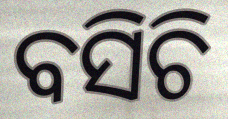
ବସିଚି